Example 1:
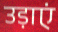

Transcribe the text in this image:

उड़ाएं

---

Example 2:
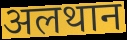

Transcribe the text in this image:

अलथान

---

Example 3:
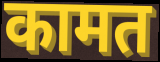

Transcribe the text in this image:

कामत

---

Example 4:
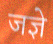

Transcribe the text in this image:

जज्ञे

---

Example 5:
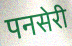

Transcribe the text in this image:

पनसेरी